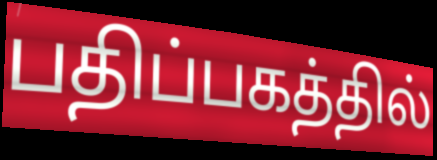
பதிப்பகத்தில்